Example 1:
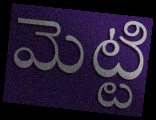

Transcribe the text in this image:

మెట్టి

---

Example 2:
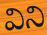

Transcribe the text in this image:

విని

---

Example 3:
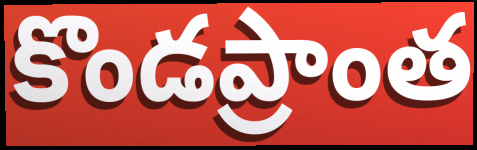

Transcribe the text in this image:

కొండప్రాంత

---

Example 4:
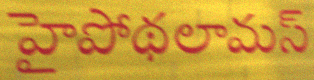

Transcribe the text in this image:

హైపోథలామస్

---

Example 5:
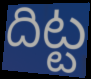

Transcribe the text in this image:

దిట్ట